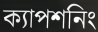
ক্যাপশনিং